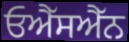
ਓਐੱਸਐੱਨ